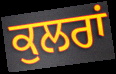
ਕੁਲਰਾਂ